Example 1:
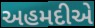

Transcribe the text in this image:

અહમદીએ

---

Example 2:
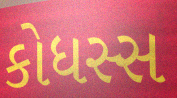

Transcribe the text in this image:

કોધસ્સ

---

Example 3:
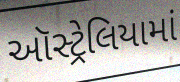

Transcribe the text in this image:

ઑસ્ટ્રેલિયામાં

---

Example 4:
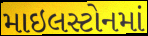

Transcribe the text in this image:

માઇલસ્ટોનમાં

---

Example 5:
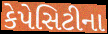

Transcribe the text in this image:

કેપેસિટીના